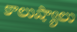
కాలుష్యాలు